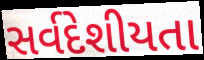
સર્વદેશીયતા